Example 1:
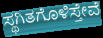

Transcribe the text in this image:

ಸ್ಥಗಿತಗೊಳಿಸ್ತೇವೆ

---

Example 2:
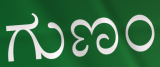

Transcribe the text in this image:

ಗುಣಂ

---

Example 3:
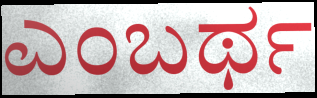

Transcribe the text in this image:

ಎಂಬರ್ಥ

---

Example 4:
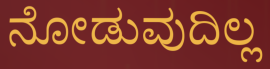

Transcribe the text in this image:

ನೋಡುವುದಿಲ್ಲ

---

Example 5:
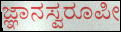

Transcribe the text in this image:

ಜ್ಞಾನಸ್ವರೂಪೀ